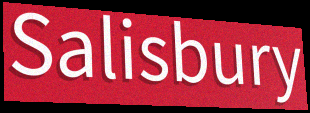
Salisbury